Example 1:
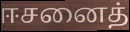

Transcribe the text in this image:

ஈசனைத்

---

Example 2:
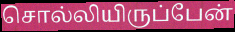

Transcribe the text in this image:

சொல்லியிருப்பேன்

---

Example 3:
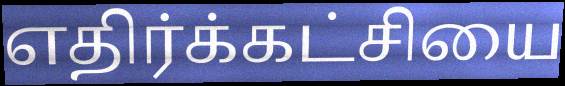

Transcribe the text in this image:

எதிர்க்கட்சியை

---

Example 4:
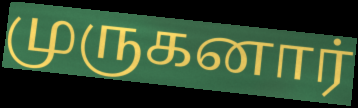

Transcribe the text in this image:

முருகனார்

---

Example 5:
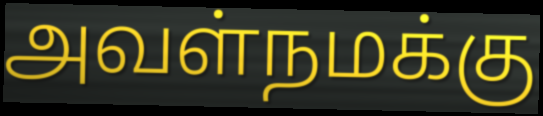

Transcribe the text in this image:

அவள்நமக்கு